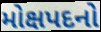
મોક્ષપદનો